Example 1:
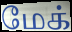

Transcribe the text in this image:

மேக்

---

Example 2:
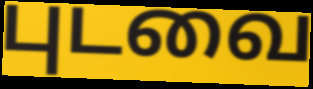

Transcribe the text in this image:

புடவை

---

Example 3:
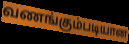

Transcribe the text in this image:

வணங்கும்படியான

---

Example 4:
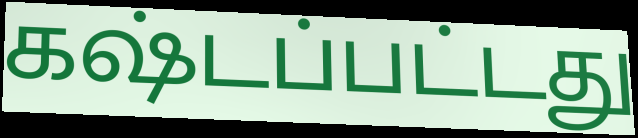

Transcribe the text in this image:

கஷ்டப்பட்டது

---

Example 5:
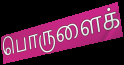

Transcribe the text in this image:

பொருளைக்